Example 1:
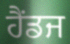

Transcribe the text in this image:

ਹੈਂਡਜ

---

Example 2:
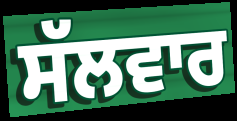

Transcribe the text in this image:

ਸੱਲਵਾਰ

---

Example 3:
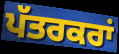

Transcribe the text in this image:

ਪੱਤਰਕਰਾਂ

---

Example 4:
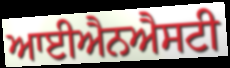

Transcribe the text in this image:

ਆਈਐਨਐਸਟੀ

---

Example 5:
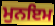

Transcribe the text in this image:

ਮੁਨਇਮ